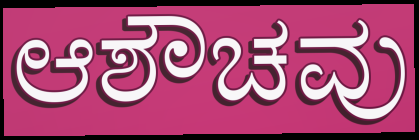
ಆಶೌಚವು